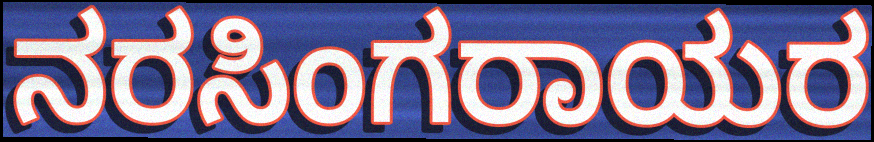
ನರಸಿಂಗರಾಯರ